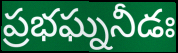
ప్రభఘ్ననీడః